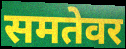
समतेवर